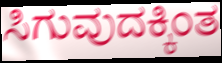
ಸಿಗುವುದಕ್ಕಿಂತ